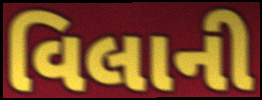
વિલાની